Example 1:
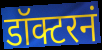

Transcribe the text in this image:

डॉक्टरनं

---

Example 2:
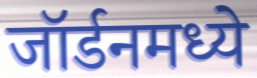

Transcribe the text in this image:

जॉर्डनमध्ये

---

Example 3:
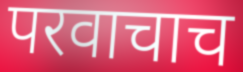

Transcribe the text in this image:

परवाचाच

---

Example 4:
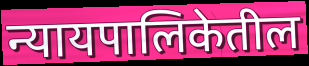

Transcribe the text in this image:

न्यायपालिकेतील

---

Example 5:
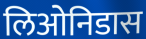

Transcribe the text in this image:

लिओनिडास